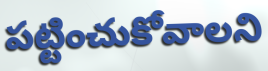
పట్టించుకోవాలని